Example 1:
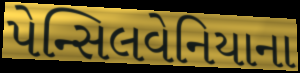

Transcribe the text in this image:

પેન્સિલવેનિયાના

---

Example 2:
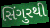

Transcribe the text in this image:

સિંગુરથી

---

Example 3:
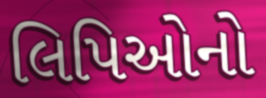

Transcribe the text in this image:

લિપિઓનો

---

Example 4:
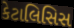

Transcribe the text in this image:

કેટાલિસિસ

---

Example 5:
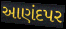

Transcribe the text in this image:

આણંદપર